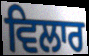
ਵਿਲਾਰ